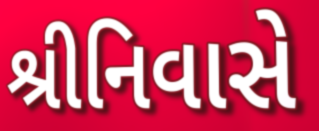
શ્રીનિવાસે